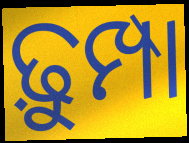
ଢ଼ୁମ୍ପା